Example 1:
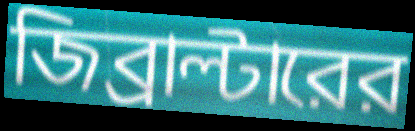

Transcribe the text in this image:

জিব্রাল্টারের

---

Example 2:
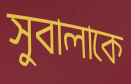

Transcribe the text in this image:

সুবালাকে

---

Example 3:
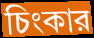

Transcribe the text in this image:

চিংকার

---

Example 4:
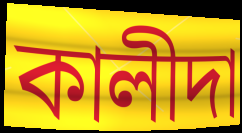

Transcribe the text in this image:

কালীদা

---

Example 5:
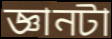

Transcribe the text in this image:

জ্ঞানটা